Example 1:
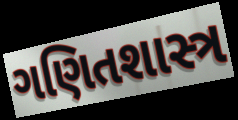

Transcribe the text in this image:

ગણિતશાસ્ત્ર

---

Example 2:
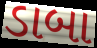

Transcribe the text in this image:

ડાબા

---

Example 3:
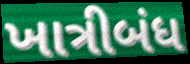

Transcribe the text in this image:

ખાત્રીબંધ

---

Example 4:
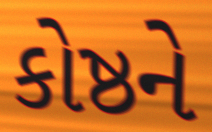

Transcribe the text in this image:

કોષ્ઠને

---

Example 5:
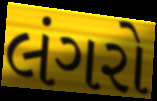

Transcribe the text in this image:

લંગરો